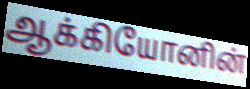
ஆக்கியோனின்